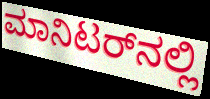
ಮಾನಿಟರ್‌ನಲ್ಲಿ